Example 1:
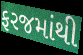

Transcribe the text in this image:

ફરજમાંથી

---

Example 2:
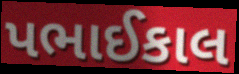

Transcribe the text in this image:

પભાઈકાલ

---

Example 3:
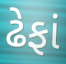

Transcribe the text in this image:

ઢેફાં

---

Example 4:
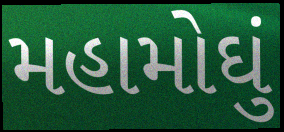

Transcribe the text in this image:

મહામોઘું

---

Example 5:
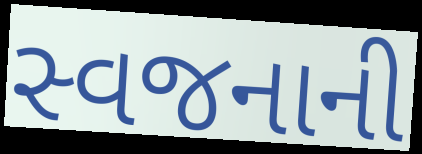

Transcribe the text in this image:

સ્વજનાની